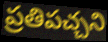
ప్రతిపచ్చని